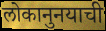
लोकानुनयाची